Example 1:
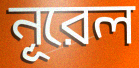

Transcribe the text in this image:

নূরেল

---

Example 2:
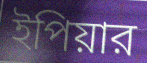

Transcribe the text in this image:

ইপিয়ার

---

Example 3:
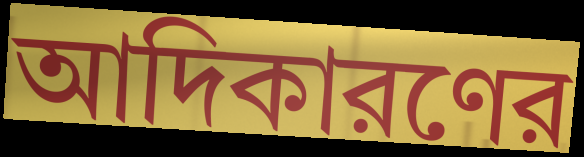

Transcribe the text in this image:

আদিকারণের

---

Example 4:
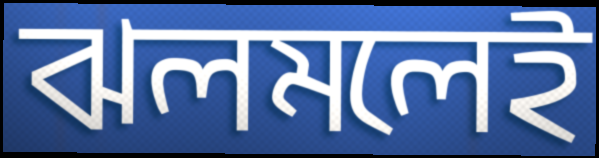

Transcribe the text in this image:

ঝলমলেই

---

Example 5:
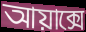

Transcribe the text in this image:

আয়াক্সে